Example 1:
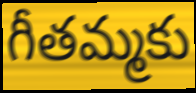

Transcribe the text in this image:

గీతమ్మకు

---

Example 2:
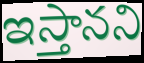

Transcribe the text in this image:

ఇస్తానని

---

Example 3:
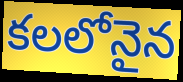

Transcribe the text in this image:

కలలోనైన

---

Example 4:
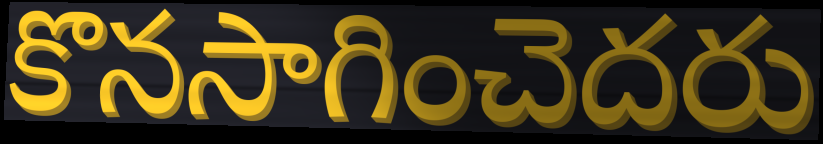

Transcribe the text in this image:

కొనసాగించెదరు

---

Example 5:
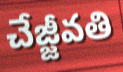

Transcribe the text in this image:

చేజ్జీవతి